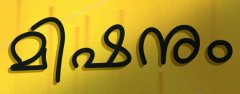
മിഷനും